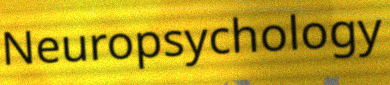
Neuropsychology